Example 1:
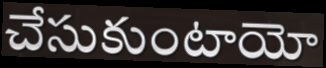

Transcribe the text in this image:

చేసుకుంటాయో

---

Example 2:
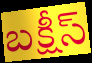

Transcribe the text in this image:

బక్షీస్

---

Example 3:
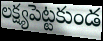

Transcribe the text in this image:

లక్ష్యపెట్టకుండ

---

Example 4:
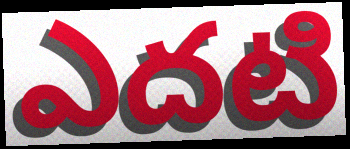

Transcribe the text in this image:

ఎదటి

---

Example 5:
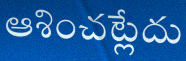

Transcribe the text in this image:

ఆశించట్లేదు